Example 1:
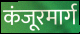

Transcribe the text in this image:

कंजूरमार्ग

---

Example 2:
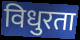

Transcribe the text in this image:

विधुरता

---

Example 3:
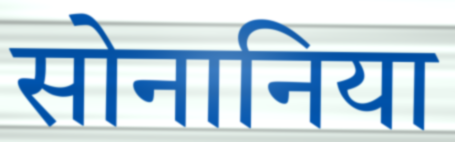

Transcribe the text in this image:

सोनानिया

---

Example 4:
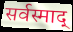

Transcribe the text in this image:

सर्वस्माद्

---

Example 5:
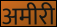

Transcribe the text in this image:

अमीरी